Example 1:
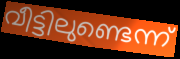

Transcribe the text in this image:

വീട്ടിലുണ്ടെന്ന്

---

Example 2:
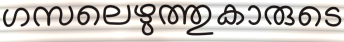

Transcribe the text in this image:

ഗസലെഴുത്തുകാരുടെ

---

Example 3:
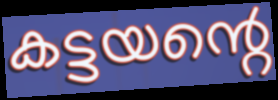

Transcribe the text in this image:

കട്ടയന്റെ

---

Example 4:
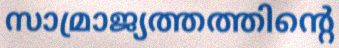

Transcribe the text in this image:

സാമ്രാജ്യത്തത്തിന്റെ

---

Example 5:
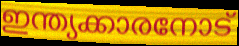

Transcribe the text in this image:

ഇന്ത്യക്കാരനോട്